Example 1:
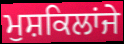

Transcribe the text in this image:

ਮੁਸ਼ਕਿਲਾਂਜੇ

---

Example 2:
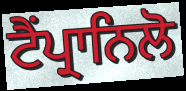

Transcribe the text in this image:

ਟੈਂਪ੍ਰਾਨਿਲੋ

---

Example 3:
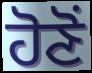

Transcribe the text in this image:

ਹੋਣੋਂ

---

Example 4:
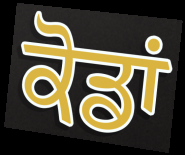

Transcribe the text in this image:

ਕੋਡਾਂ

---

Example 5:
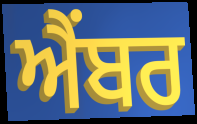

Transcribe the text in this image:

ਐਂਬਰ